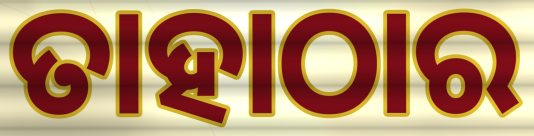
ତାହାଠାର